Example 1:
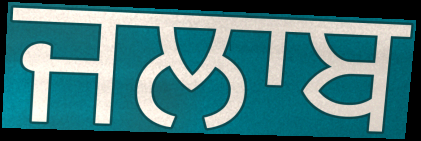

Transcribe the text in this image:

ਜਲਾਬ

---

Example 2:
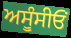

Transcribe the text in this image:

ਅਸੂੰਸੀਓਂ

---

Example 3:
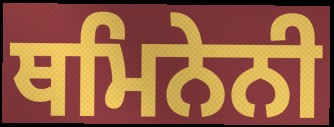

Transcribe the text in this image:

ਥਮਿਨੇਨੀ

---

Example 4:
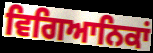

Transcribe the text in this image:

ਵਿਗਿਆਨਿਕਾਂ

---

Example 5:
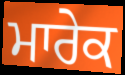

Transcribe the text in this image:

ਮਾਰੇਕ